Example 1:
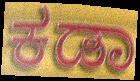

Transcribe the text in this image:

ಕಡಾ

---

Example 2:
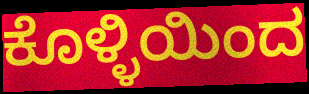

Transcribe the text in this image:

ಕೊಳ್ಳಿಯಿಂದ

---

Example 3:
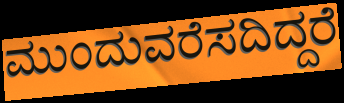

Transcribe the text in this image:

ಮುಂದುವರೆಸದಿದ್ದರೆ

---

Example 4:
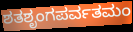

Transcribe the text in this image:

ಶತಶೃಂಗಪರ್ವತಮಂ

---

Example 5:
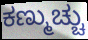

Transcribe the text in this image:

ಕಣ್ಮುಚ್ಚು